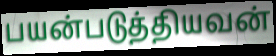
பயன்படுத்தியவன்